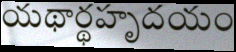
యథార్థహృదయం